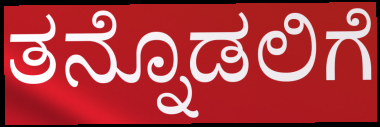
ತನ್ನೊಡಲಿಗೆ